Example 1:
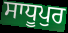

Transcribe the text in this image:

ਸਾਧੂਪੁਰ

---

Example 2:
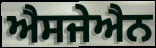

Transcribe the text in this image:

ਐਸਜੇਐਨ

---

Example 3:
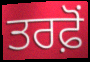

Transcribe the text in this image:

ਤਰਫ਼ੋਂ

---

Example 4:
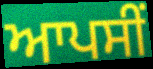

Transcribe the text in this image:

ਆਪਸੀਂ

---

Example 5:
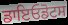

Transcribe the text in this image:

ਡਾਇਓਡੋਟਸ